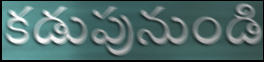
కడుపునుండి